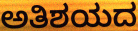
ಅತಿಶಯದ